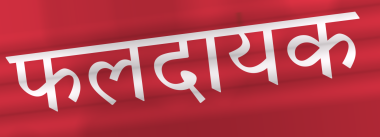
फलदायक